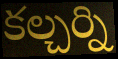
కల్చర్ని